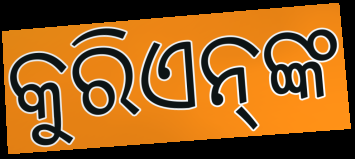
କୁରିଏନ୍‌ଙ୍କ